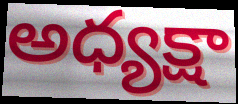
అధ్యక్షా